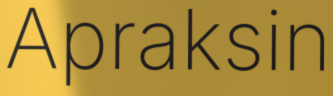
Apraksin